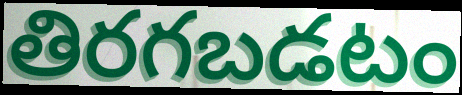
తిరగబడటం